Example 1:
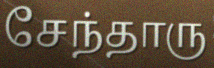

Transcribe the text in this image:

சேந்தாரு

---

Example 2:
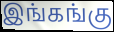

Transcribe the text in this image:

இங்கங்கு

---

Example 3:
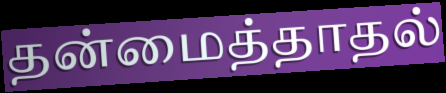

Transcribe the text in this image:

தன்மைத்தாதல்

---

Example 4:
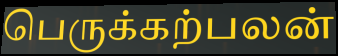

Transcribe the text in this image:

பெருக்கற்பலன்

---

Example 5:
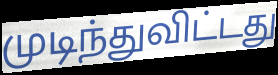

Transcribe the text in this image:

முடிந்துவிட்டது